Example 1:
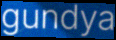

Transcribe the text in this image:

gundya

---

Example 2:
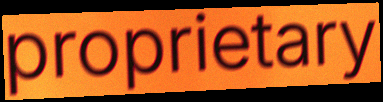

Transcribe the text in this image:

proprietary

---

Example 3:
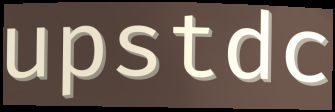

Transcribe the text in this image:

upstdc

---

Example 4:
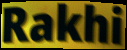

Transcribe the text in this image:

Rakhi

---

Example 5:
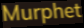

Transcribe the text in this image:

Murphet